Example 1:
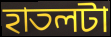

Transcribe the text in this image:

হাতলটা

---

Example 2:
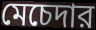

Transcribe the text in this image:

মেচেদার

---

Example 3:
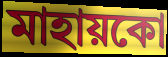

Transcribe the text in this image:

মাহায়কো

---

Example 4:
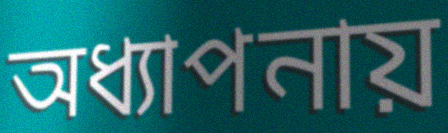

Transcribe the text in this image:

অধ্যাপনায়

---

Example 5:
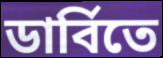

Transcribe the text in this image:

ডার্বিতে